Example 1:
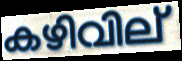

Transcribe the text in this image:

കഴിവില്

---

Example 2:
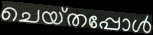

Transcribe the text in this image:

ചെയ്‌തപ്പോൾ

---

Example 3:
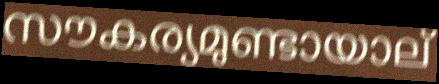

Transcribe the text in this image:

സൗകര്യമുണ്ടായാല്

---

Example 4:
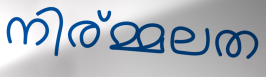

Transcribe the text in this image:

നിര്മ്മലത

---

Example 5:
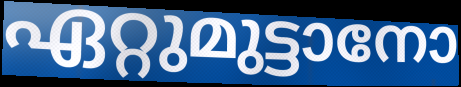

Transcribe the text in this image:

ഏറ്റുമുട്ടാനോ